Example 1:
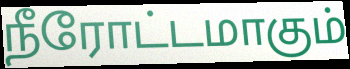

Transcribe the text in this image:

நீரோட்டமாகும்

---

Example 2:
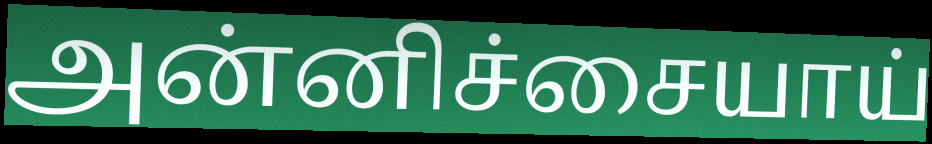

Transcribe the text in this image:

அன்னிச்சையாய்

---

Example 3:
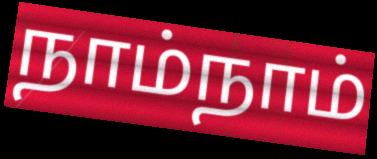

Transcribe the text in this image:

நாம்நாம்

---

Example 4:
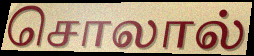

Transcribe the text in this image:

சொலால்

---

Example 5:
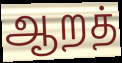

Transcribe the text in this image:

ஆறத்